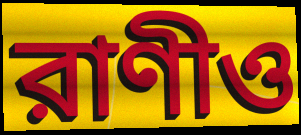
রাণীও